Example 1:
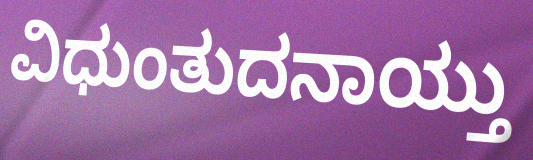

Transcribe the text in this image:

ವಿಧುಂತುದನಾಯ್ತು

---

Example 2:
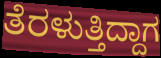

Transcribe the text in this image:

ತೆರಳುತ್ತಿದ್ದಾಗ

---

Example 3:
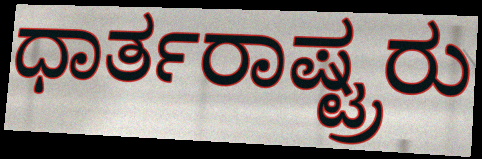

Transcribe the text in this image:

ಧಾರ್ತರಾಷ್ಟ್ರರು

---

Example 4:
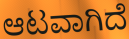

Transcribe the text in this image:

ಆಟವಾಗಿದೆ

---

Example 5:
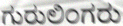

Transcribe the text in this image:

ಗುರುಲಿಂಗರು